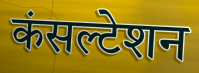
कंसल्टेशन